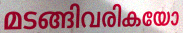
മടങ്ങിവരികയോ